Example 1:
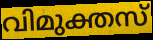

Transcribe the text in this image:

വിമുക്തസ്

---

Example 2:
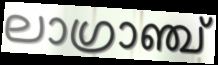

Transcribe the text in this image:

ലാഗ്രാഞ്ച്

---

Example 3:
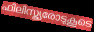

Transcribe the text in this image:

ഫിലിസ്ത്യരോടുകൂടെ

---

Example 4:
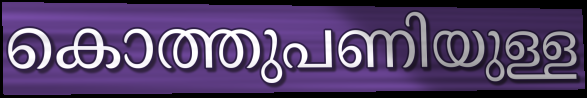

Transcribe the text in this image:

കൊത്തുപണിയുള്ള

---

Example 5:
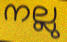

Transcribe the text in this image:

നല്ലു